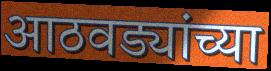
आठवड्यांच्या